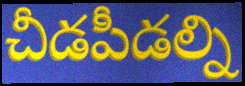
చీడపీడల్ని